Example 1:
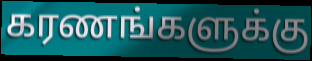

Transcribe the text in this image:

கரணங்களுக்கு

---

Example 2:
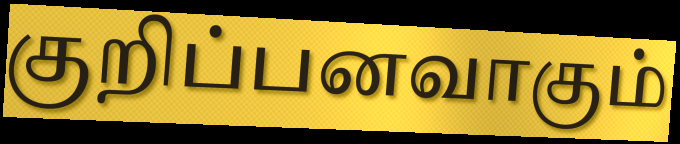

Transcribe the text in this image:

குறிப்பனவாகும்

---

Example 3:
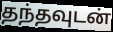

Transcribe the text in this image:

தந்தவுடன்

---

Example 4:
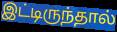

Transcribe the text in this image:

இட்டிருந்தால்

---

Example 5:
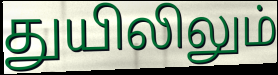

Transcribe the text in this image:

துயிலிலும்